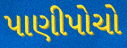
પાણીપોચો